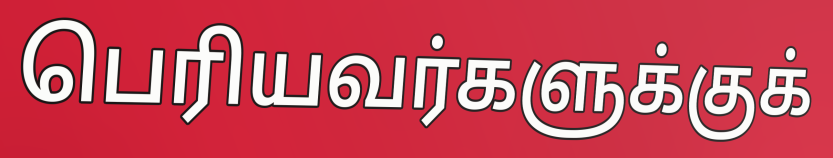
பெரியவர்களுக்குக்